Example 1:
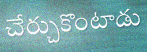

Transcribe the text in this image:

చేర్చుకొంటాడు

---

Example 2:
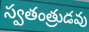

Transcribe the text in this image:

స్వతంత్రుడవు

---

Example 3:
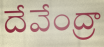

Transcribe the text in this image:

దేవేంద్రా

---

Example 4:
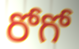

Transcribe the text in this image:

రోగో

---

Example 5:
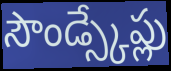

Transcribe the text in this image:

సౌండ్స్కేప్లు